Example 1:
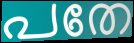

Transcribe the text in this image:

പതേ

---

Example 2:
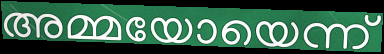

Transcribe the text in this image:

അമ്മയോയെന്ന്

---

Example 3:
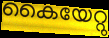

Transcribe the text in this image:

കൈയേറ്റു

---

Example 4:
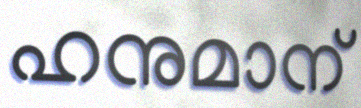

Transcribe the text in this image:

ഹനുമാന്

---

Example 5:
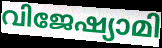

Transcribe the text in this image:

വിജേഷ്യാമി